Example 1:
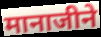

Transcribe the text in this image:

मानाजीने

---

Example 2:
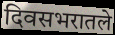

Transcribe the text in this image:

दिवसभरातले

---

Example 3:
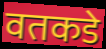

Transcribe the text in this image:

वतकडे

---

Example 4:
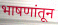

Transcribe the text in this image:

भाषणांतून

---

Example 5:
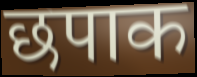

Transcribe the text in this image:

छपाक